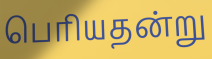
பெரியதன்று